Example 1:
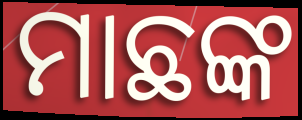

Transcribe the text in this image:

ମାଛଙ୍କ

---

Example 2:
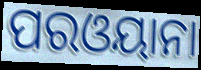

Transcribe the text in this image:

ପରଓୟାନା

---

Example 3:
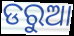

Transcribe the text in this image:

ଡରୁଆ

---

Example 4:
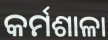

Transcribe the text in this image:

କର୍ମଶାଳା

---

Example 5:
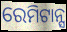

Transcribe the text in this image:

ରେମିଟାନ୍ସ